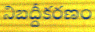
నిబద్దీకరణం